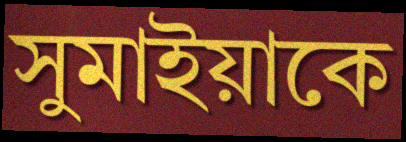
সুমাইয়াকে